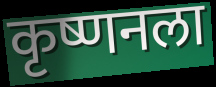
कृष्णनला